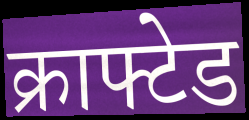
क्राफ्टेड